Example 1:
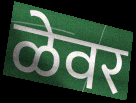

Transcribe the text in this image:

ळेवर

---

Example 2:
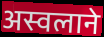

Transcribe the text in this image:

अस्वलाने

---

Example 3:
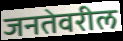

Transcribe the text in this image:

जनतेवरील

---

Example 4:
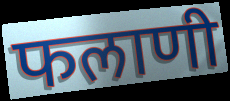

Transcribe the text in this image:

फलाणी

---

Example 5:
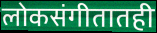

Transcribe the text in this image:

लोकसंगीतातही